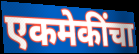
एकमेकींचा